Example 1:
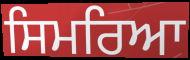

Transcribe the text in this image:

ਸਿਮਰਿਆ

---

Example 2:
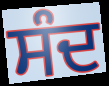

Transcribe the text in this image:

ਸੰਦ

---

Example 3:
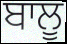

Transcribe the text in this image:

ਬਾਲੂ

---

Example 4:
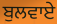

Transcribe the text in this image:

ਬੁਲਵਾਏ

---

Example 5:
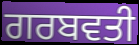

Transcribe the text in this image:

ਗਰਬਵਤੀ